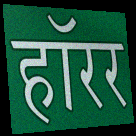
हॉरर